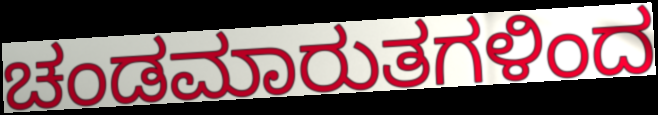
ಚಂಡಮಾರುತಗಳಿಂದ